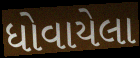
ધોવાયેલા